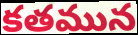
కతమున